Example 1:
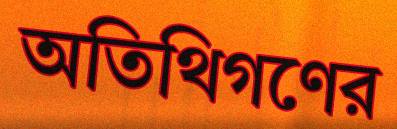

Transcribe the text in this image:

অতিথিগণের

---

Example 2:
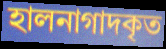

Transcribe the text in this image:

হালনাগাদকৃত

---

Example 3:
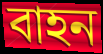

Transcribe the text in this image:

বাহন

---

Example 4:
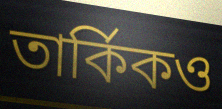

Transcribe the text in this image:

তার্কিকও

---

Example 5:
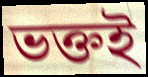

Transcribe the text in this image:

ভক্তই